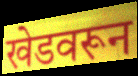
खेडवरून